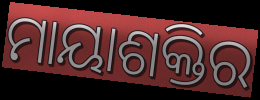
ମାୟାଶକ୍ତିର